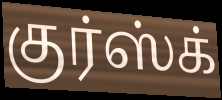
குர்ஸ்க்